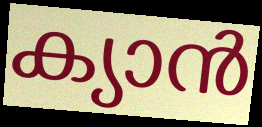
ക്യാൻ